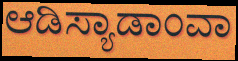
ಆಡಿಸ್ಯಾಡಾಂವಾ